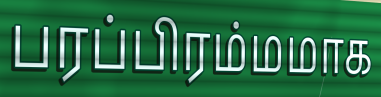
பரப்பிரம்மமாக